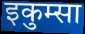
इकुम्सा